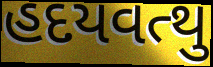
હદયવત્થુ